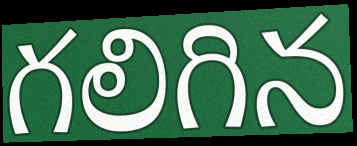
గలిగిన